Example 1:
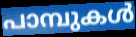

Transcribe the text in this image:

പാമ്പുകൾ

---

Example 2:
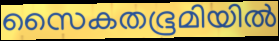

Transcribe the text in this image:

സൈകതഭൂമിയിൽ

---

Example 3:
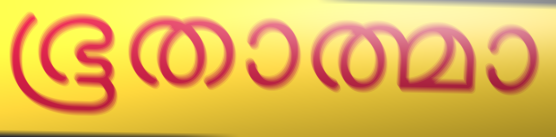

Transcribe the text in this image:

ഭൂതാത്മാ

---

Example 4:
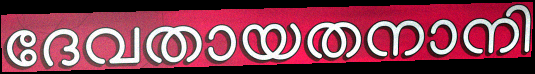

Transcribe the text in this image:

ദേവതായതനാനി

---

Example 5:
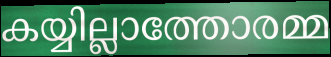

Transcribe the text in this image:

കയ്യില്ലാത്തോരമ്മ